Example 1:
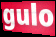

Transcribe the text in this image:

gulo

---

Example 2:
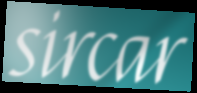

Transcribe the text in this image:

sircar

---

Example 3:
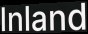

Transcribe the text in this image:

Inland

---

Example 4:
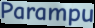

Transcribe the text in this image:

Parampu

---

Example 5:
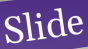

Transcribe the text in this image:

Slide